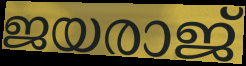
ജയരാജ്